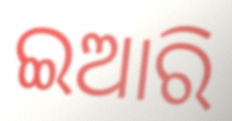
ଇଆରି